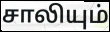
சாலியும்